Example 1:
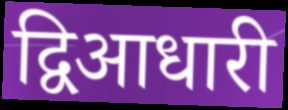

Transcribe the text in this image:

द्विआधारी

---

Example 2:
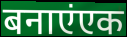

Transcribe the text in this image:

बनाएंएक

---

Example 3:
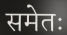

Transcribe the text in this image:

समेतः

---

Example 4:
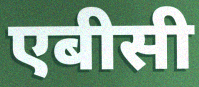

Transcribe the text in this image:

एबीसी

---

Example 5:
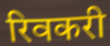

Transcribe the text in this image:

रिवकरी